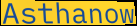
Asthanow